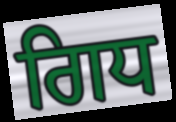
ਗਿਧ